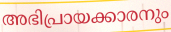
അഭിപ്രായക്കാരനും